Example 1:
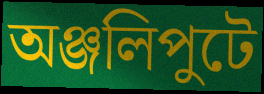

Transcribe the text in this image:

অঞ্জলিপুটে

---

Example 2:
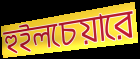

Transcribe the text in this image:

হুইলচেয়ারে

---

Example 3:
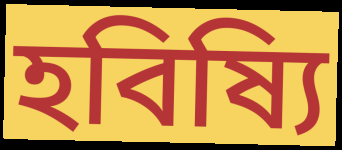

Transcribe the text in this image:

হবিষ্যি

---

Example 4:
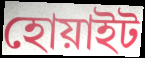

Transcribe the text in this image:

হোয়াইট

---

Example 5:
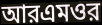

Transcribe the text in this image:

আরএমওর